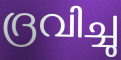
ദ്രവിച്ചു